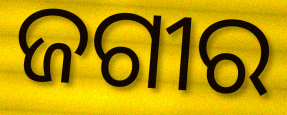
ଜଗୀର